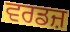
ਵਰਡਜ਼